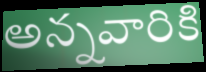
అన్నవారికి